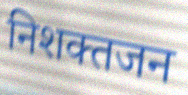
निशक्तजन